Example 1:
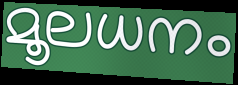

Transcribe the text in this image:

മൂലധനം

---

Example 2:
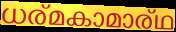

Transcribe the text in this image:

ധര്മകാമാര്ഥ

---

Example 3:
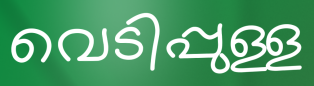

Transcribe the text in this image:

വെടിപ്പുള്ള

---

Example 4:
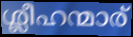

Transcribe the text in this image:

ശ്ലീഹന്മാര്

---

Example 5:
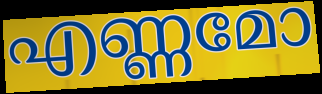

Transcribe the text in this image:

എണ്ണമോ